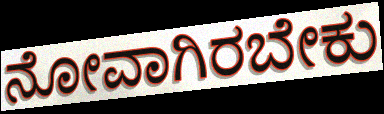
ನೋವಾಗಿರಬೇಕು